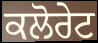
ਕਲੋਰੇਟ